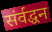
संर्वद्धन